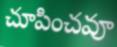
చూపించవూ